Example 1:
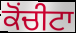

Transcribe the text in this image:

ਕੋਂਚੀਟਾ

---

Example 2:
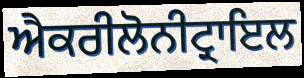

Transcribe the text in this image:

ਐਕਰੀਲੋਨੀਟ੍ਰਾਇਲ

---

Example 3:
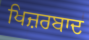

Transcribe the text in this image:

ਖਿਜ਼ਰਬਾਦ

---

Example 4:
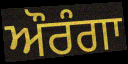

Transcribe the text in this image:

ਔਰੰਗਾ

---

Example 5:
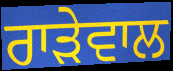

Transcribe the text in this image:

ਰਾੜੇਵਾਲ